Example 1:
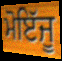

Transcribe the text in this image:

ਮੋਇੱਜੂ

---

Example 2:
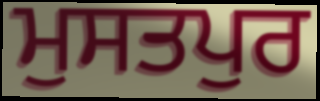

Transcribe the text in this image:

ਮੁਸਤਪੁਰ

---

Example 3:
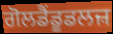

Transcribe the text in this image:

ਗੋਲਡੈਂਡੂਡਲਜ਼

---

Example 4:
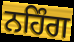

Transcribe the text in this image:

ਨਹਿੰਗ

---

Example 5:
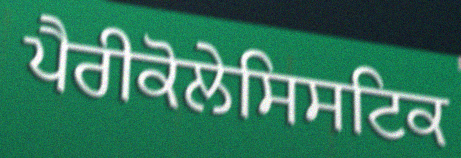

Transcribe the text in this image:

ਪੈਰੀਕੋਲੇਸਿਸਟਿਕ